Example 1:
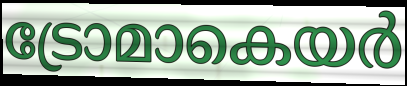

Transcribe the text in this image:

ട്രോമാകെയർ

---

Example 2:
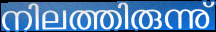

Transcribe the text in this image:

നിലത്തിരുന്നു്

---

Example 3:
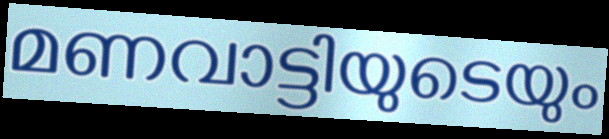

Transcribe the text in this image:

മണവാട്ടിയുടെയും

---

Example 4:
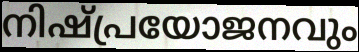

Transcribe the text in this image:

നിഷ്പ്രയോജനവും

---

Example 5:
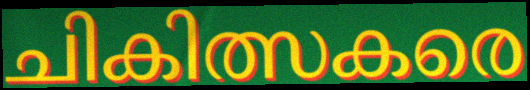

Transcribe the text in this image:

ചികിത്സകരെ